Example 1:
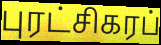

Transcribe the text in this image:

புரட்சிகரப்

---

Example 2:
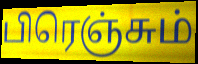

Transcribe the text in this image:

பிரெஞ்சும்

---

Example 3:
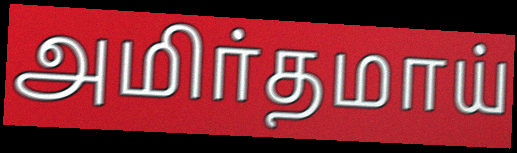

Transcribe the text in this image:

அமிர்தமாய்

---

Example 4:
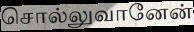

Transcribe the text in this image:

சொல்லுவானேன்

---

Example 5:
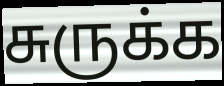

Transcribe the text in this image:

சுருக்க